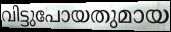
വിട്ടുപോയതുമായ